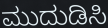
ಮುದುಡಿಸಿ